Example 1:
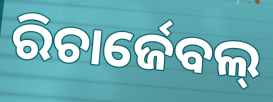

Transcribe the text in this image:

ରିଚାର୍ଜେବଲ୍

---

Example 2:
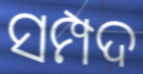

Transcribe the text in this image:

ସମ୍ପଦ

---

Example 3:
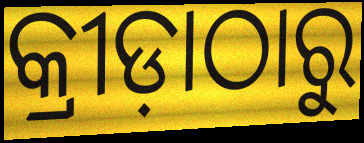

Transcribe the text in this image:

କ୍ରୀଡ଼ାଠାରୁ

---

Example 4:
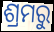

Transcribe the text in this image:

ଶ୍ରମରୁ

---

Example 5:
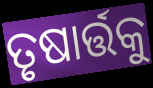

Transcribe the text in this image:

ତୃଷାର୍ତ୍ତକୁ